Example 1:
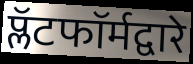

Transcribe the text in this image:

प्लॅटफॉर्मद्वारे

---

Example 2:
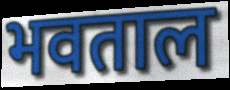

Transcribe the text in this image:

भवताल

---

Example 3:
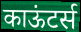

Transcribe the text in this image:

काऊंटर्स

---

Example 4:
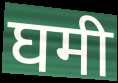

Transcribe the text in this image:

घमी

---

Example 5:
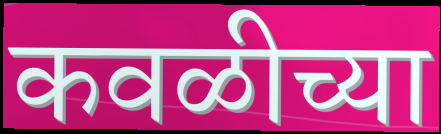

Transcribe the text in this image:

कवळीच्या